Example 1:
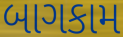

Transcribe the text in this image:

બાગકામ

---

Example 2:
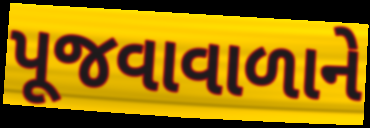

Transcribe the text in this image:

પૂજવાવાળાને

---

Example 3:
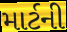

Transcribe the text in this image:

માર્ટની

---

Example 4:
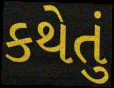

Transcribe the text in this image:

કથેતું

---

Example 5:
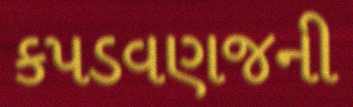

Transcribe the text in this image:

કપડવણજની